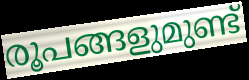
രൂപങ്ങളുമുണ്ട്